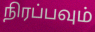
நிரப்பவும்